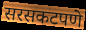
सरसकटपणे